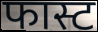
फास्ट